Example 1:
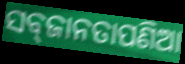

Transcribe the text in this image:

ସବ୍‌ଜାନତାପଣିଆ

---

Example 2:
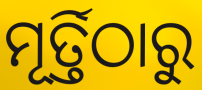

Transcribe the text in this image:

ମୂର୍ତ୍ତିଠାରୁ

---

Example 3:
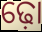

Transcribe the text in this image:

ଢ଼ୋ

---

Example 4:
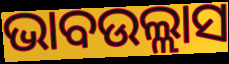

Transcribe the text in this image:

ଭାବଉଲ୍ଲାସ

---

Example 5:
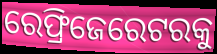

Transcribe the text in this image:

ରେଫ୍ରିଜେରେଟରକୁ